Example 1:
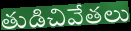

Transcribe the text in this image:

తుడిచివేతలు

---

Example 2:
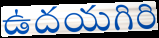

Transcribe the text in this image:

ఉదయగిరి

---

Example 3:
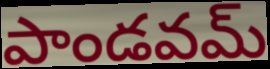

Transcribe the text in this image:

పాండవమ్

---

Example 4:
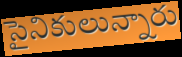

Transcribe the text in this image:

సైనికులున్నారు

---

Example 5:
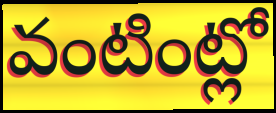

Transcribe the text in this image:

వంటింట్లో